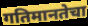
गतिमानतेचा